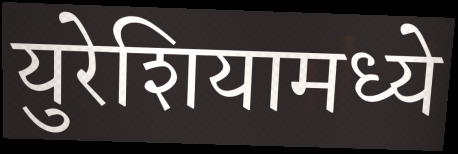
युरेशियामध्ये